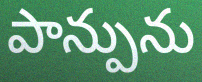
పాన్పును